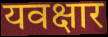
यवक्षार